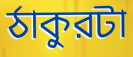
ঠাকুরটা